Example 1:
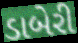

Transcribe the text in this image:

ડાબેરી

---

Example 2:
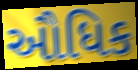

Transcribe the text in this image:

ઔધિક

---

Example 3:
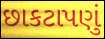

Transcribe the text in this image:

છાકટાપણું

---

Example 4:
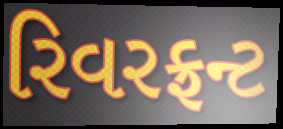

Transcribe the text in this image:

રિવરફ્રન્ટ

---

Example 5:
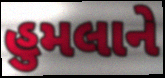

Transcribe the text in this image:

હુમલાને